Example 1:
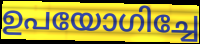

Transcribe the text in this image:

ഉപയോഗിച്ചേ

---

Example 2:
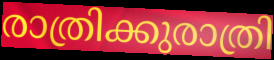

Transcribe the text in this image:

രാത്രിക്കുരാത്രി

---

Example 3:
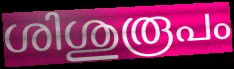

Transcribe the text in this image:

ശിശുരൂപം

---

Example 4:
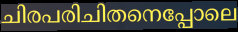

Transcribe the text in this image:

ചിരപരിചിതനെപ്പോലെ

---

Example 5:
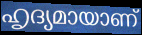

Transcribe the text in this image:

ഹൃദ്യമായാണ്